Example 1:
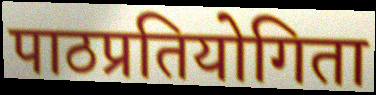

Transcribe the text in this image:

पाठप्रतियोगिता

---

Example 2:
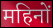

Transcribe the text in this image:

महिनों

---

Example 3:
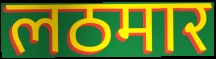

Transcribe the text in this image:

लठमार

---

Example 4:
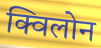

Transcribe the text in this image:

क्विलोन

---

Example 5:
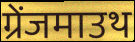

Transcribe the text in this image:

ग्रेंजमाउथ